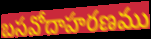
బసవోదాహరణము